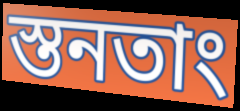
স্তনতাং